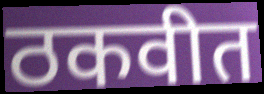
ठकवीत